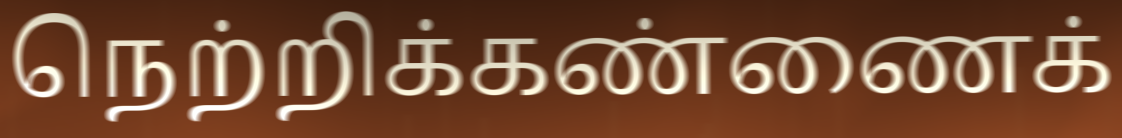
நெற்றிக்கண்ணைக்